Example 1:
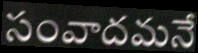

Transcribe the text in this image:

సంవాదమనే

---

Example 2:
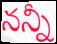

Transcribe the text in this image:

నన్నీ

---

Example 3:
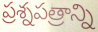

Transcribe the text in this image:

ప్రశ్నపత్రాన్ని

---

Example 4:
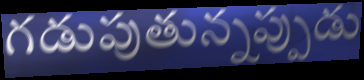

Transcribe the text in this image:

గడుపుతున్నప్పుడు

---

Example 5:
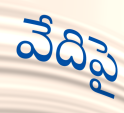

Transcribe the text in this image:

వేదిపై